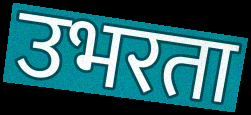
उभरता